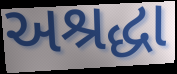
અશ્રદ્ધા